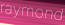
raymond